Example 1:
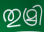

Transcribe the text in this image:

തുമ്രി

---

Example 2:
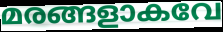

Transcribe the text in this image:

മരങ്ങളാകവേ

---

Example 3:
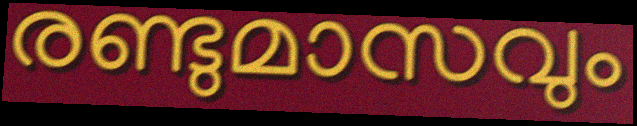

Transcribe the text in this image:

രണ്ടുമാസവും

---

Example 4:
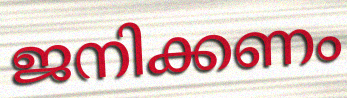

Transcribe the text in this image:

ജനിക്കണം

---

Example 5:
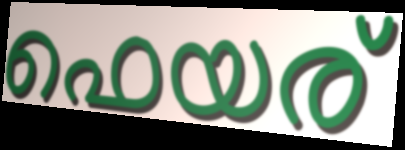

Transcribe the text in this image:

ഫെയര്